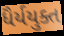
ધૈર્યયુક્ત